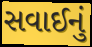
સવાઈનું